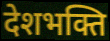
देशभक्ति